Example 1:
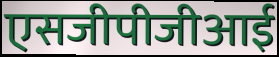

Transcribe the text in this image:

एसजीपीजीआई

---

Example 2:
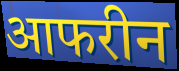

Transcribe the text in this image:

आफरीन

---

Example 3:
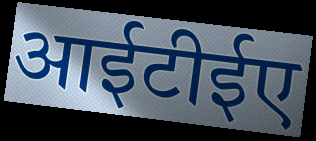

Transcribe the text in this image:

आईटीईए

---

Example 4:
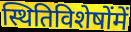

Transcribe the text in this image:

स्थितिविशेषोंमें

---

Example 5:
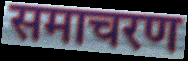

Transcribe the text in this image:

समाचरण